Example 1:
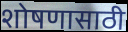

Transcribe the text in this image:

शोषणासाठी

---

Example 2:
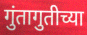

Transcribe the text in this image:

गुंतागुतीच्या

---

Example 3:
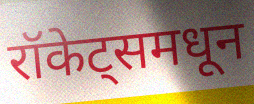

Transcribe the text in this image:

रॉकेट्समधून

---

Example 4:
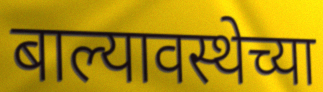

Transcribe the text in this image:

बाल्यावस्थेच्या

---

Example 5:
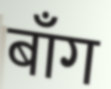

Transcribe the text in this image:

बाँग